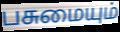
பசுமையும்